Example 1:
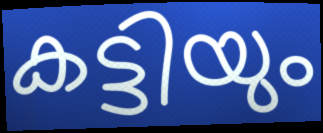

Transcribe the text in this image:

കട്ടിയും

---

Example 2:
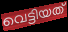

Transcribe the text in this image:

വെട്ടിയത്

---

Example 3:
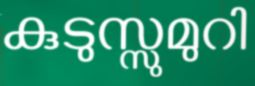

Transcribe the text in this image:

കുടുസ്സുമുറി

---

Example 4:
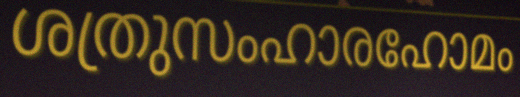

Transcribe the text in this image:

ശത്രുസംഹാരഹോമം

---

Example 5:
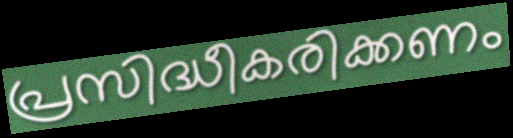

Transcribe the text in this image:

പ്രസിദ്ധീകരിക്കണം